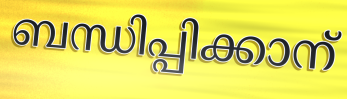
ബന്ധിപ്പിക്കാന്